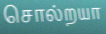
சொல்றயா